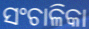
ସଂଚାଳିକା